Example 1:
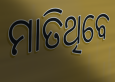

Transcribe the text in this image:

ମାତିଥିବେ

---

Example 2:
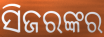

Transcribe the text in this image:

ସିଜରଙ୍କର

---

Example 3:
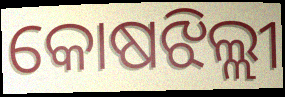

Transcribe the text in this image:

କୋଷଝିଲ୍ଲୀ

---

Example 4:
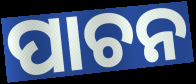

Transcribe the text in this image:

ପାଚନ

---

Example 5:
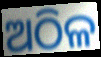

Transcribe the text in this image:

ଅଠିଳ